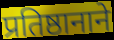
प्रतिष्ठानाने